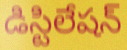
డిస్టిలేషన్